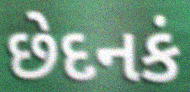
છેદનકં